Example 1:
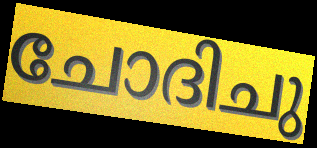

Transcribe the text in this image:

ചോദിചു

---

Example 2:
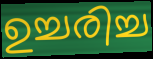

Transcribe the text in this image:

ഉച്ചരിച്ച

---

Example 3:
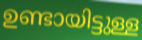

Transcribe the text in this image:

ഉണ്ടായിട്ടുള്ള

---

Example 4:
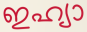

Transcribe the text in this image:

ഇഹ്യാ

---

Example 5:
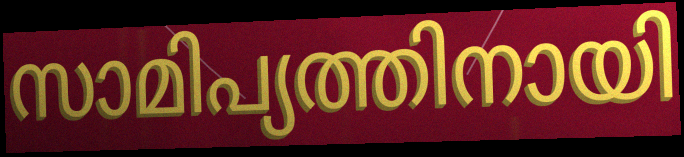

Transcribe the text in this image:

സാമിപ്യത്തിനായി